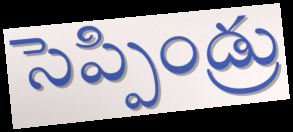
సెప్పిండ్రు